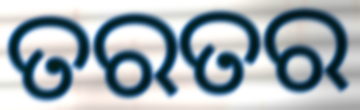
ତରତର